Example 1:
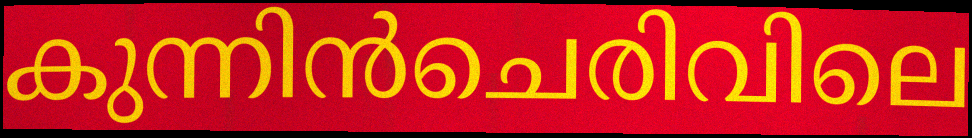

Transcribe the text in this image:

കുന്നിൻചെരിവിലെ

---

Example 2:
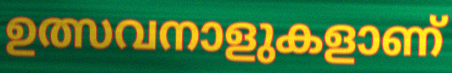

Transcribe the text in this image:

ഉത്സവനാളുകളാണ്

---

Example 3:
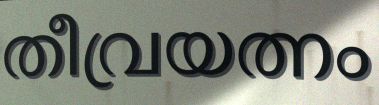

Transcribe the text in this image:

തീവ്രയത്നം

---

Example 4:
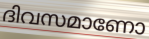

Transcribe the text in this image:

ദിവസമാണോ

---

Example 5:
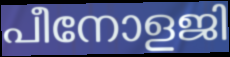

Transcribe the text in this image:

പീനോളജി